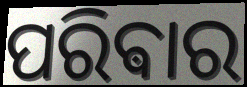
ପରିଵାର